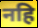
नहि